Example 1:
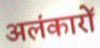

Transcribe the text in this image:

अलंकारों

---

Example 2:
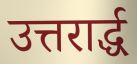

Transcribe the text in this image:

उत्तरार्द्ध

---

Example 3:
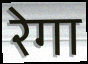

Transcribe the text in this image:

रेगा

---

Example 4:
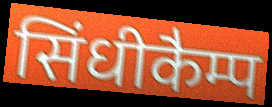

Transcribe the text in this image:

सिंधीकैम्प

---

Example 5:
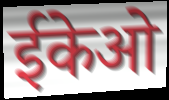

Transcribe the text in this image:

ईकेओ